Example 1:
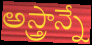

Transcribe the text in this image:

అస్త్రాన్నే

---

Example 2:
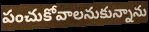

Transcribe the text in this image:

పంచుకోవాలనుకున్నాను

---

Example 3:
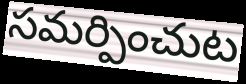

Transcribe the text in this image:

సమర్పించుట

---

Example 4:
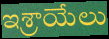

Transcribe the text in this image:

ఇశ్రాయేలు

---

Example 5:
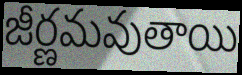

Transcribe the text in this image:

జీర్ణమవుతాయి